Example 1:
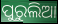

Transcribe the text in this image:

ପୁରୁଲିଆ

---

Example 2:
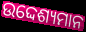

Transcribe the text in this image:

ଉଦ୍ଦେଶ୍ୟମାନ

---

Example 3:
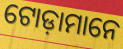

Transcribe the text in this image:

ଟୋଡ଼ାମାନେ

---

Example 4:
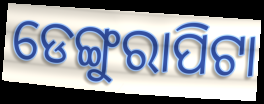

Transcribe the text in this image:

ଡେଙ୍ଗୁରାପିଟା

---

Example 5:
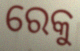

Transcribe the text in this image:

ରେକୁ